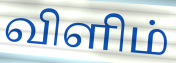
விளிம்